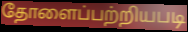
தோளைப்பற்றியபடி